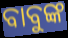
ବାବୁଙ୍କ